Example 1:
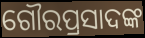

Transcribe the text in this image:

ଗୌରପ୍ରସାଦଙ୍କ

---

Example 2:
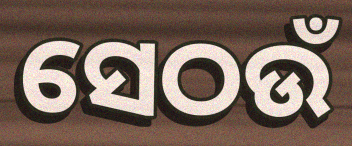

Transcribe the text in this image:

ସେଠଉଁ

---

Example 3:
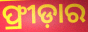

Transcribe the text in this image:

ଫ୍ରୀଡ଼ାର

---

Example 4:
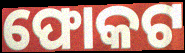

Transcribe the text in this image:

ଫୋକଟ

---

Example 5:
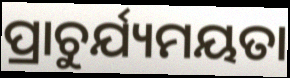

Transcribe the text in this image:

ପ୍ରାଚୁର୍ଯ୍ୟମୟତା